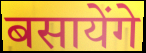
बसायेंगे